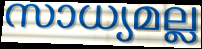
സാധ്യമല്ല